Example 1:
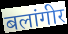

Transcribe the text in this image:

बलांगीर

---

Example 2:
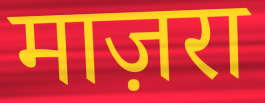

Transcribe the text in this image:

माज़रा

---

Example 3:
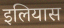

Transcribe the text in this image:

इलियास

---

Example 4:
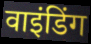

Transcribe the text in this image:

वाइंडिंग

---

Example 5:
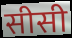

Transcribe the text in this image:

सीसी